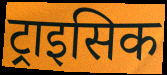
ट्राइसिक